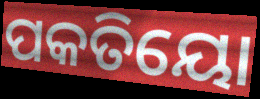
ପକତିୟୋ